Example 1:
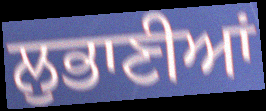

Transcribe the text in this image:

ਲੁਭਾਣੀਆਂ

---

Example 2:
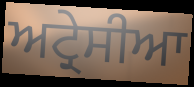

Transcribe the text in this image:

ਅਟ੍ਰੇਸੀਆ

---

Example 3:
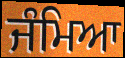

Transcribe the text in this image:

ਜੰਮਿਆ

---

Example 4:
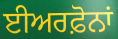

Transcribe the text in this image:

ਈਅਰਫ਼ੋਨਾਂ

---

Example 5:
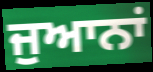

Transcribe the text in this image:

ਜੁਆਨਾਂ